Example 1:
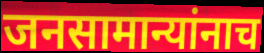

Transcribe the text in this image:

जनसामान्यांनाच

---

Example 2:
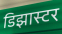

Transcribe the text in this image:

डिझास्टर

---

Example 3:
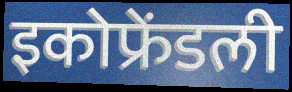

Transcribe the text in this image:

इकोफ्रेंडली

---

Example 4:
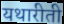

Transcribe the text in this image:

यथारीती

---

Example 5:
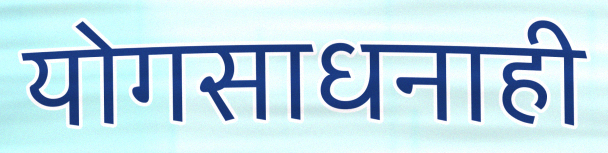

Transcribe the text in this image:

योगसाधनाही